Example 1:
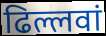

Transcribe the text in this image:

ढिल्लवां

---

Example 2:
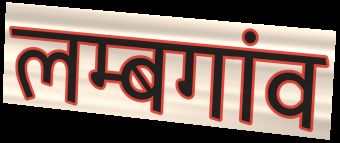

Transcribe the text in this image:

लम्बगांव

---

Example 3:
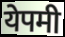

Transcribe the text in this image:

येपमी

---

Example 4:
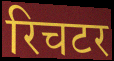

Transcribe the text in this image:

रिचटर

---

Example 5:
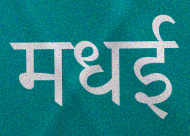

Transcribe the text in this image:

मधई